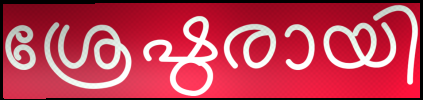
ശ്രേഷ്ഠരായി